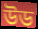
উড